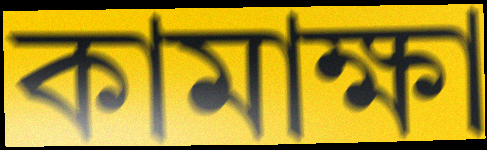
কামাক্ষা